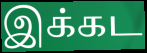
இக்கட